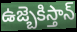
ఉజ్బెకిస్తాన్